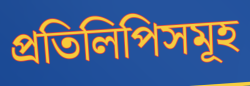
প্ৰতিলিপিসমূহ